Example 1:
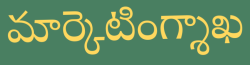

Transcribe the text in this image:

మార్కెటింగ్శాఖ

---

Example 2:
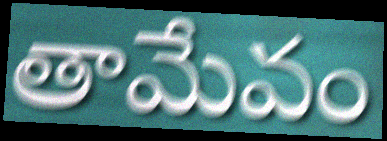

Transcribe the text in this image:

తామేవం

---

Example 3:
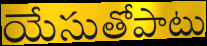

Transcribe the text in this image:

యేసుతోపాటు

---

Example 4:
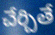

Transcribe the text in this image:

చేర్చితే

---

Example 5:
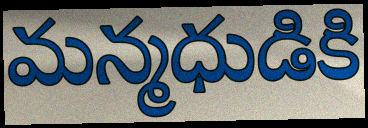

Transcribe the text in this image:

మన్మధుడికి